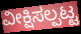
ವೀಕ್ಷಿಸಲ್ಪಟ್ಟ